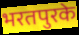
भरतपुरके